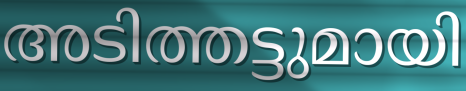
അടിത്തട്ടുമായി